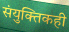
संयुक्तिकही